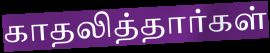
காதலித்தார்கள்